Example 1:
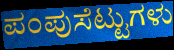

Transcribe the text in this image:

ಪಂಪುಸೆಟ್ಟುಗಳು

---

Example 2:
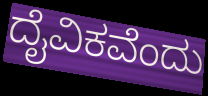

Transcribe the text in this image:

ದೈವಿಕವೆಂದು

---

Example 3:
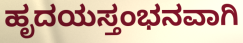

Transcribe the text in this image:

ಹೃದಯಸ್ತಂಭನವಾಗಿ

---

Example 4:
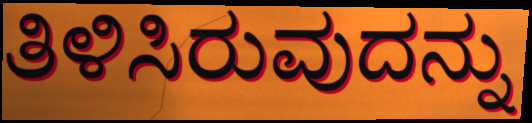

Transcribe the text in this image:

ತಿಳಿಸಿರುವುದನ್ನು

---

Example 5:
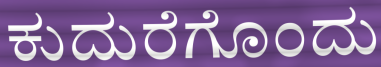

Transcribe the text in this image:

ಕುದುರೆಗೊಂದು